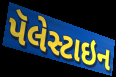
પૅલેસ્ટાઇન